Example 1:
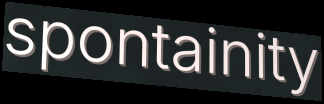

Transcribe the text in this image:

spontainity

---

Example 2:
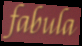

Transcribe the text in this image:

fabula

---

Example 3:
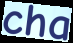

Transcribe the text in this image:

cha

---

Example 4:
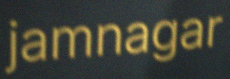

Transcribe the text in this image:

jamnagar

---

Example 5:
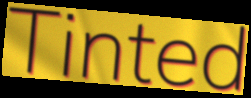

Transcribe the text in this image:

Tinted